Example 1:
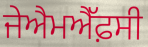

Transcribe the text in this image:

ਜੇਐਮਐੱਫ਼ਸੀ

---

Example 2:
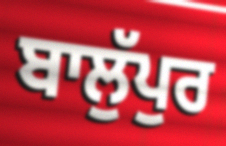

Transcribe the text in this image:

ਬਾਲੁੱਪੁਰ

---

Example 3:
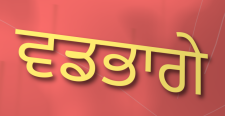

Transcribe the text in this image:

ਵਡਭਾਗੇ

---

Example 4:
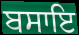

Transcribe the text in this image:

ਬਸਾਇ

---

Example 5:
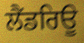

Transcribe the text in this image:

ਲੈਂਡਰਿਊ